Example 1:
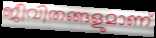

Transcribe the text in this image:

ജീവിതങ്ങളുമാണ്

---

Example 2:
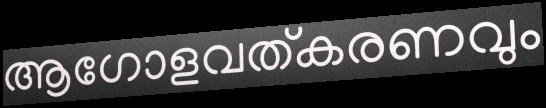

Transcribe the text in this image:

ആഗോളവത്കരണവും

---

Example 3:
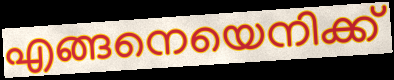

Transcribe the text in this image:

എങ്ങനെയെനിക്ക്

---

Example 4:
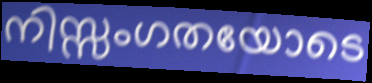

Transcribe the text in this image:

നിസ്സംഗതയോടെ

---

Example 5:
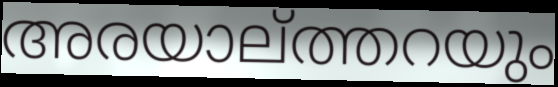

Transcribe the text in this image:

അരയാല്ത്തറയും